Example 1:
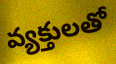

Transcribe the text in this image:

వ్యక్తులతో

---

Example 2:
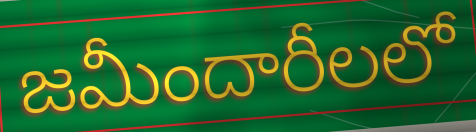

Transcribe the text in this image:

జమీందారీలలో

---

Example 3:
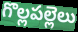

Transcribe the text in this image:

గొల్లపల్లెలు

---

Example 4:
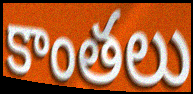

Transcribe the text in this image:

కాంతలు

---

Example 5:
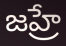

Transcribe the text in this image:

జహ్రే